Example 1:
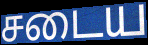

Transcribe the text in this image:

சடைய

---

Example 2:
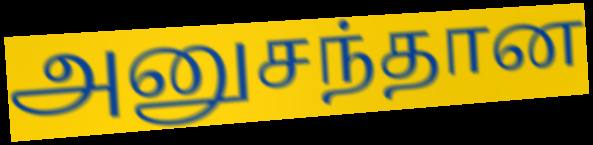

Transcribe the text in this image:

அனுசந்தான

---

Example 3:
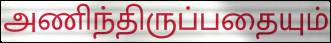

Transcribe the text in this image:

அணிந்திருப்பதையும்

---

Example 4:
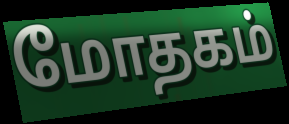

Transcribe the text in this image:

மோதகம்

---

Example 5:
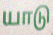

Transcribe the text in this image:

யாடு